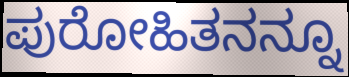
ಪುರೋಹಿತನನ್ನೂ